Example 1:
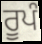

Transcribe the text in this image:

ਰੂਪੰ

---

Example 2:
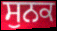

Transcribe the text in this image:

ਸੁਨਕ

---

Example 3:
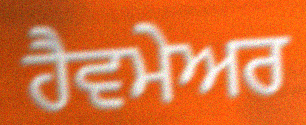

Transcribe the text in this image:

ਹੈਵਮੇਅਰ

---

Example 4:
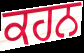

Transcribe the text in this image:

ਕਹਨ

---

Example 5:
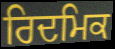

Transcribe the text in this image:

ਰਿਦਮਿਕ